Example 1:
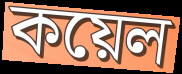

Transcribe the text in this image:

কয়েল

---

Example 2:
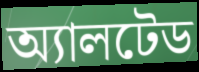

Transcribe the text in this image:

অ্যালটেড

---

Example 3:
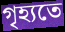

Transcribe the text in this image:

গৃহ্যতে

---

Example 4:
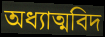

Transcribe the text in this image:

অধ্যাত্মবিদ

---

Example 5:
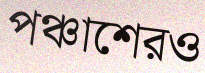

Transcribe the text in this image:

পঞ্চাশেরও